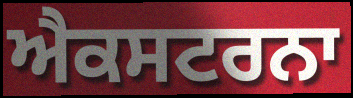
ਐਕਸਟਰਨਾ